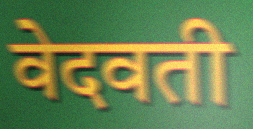
वेदवती